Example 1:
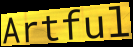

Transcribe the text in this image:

Artful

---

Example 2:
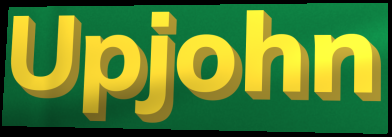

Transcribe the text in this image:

Upjohn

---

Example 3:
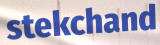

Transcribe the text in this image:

stekchand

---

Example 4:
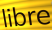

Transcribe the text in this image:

libre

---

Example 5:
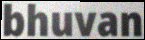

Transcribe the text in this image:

bhuvan